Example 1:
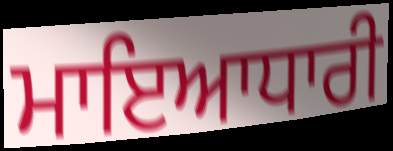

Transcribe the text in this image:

ਮਾਇਆਧਾਰੀ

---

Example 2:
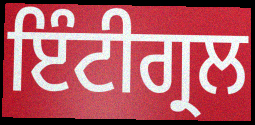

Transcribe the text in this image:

ਇੰਟੀਗ੍ਰਲ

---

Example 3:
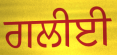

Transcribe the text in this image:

ਗਲੀਈ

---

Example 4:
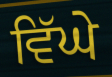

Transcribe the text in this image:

ਵਿੱਘੇ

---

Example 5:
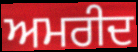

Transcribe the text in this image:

ਅਮਰੀਦ